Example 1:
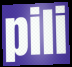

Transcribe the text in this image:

pili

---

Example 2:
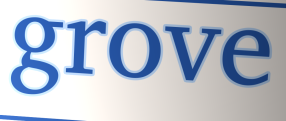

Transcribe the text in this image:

grove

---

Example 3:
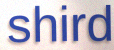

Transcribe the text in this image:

shird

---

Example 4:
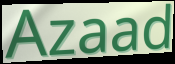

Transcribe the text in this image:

Azaad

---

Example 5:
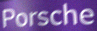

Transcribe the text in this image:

Porsche